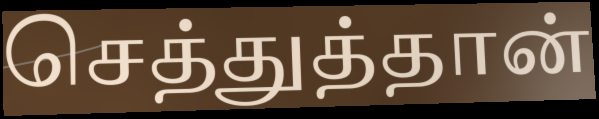
செத்துத்தான்